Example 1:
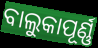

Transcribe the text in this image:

ବାଲୁକାପୂର୍ଣ୍ଣ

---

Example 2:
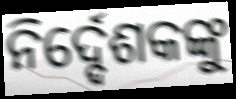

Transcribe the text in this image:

ନିର୍ଦ୍ଦେଶକଙ୍କୁ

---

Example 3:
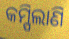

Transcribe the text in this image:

କମ୍ପିଲାଣି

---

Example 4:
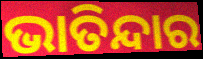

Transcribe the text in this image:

ଭାତିନ୍ଦାର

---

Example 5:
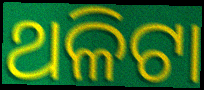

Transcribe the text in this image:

ଥଳିଟା